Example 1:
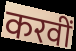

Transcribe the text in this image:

करवीं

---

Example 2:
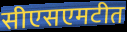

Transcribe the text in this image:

सीएसएमटीत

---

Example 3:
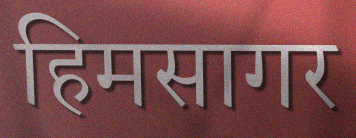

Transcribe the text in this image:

हिमसागर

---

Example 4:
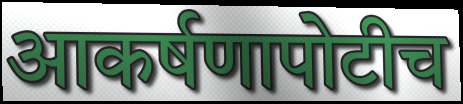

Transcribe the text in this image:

आकर्षणापोटीच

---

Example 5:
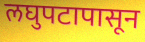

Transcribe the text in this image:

लघुपटापासून